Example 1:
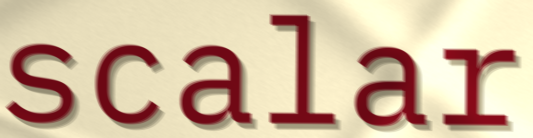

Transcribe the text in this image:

scalar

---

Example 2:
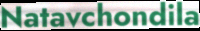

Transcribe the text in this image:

Natavchondila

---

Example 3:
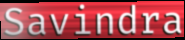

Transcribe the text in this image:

Savindra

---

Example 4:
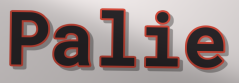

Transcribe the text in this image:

Palie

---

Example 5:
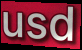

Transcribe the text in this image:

usd